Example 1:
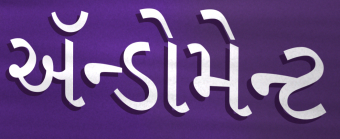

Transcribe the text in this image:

ઍન્ડોમેન્ટ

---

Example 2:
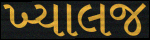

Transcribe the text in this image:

ખ્યાલજ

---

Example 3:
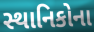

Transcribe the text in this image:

સ્થાનિકોના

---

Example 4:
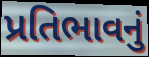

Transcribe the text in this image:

પ્રતિભાવનું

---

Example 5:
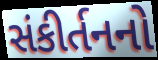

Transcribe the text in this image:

સંકીર્તનનો